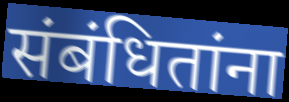
संबंधितांना